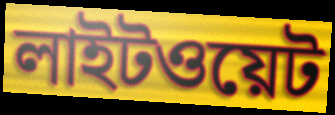
লাইটওয়েট